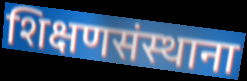
शिक्षणसंस्थाना